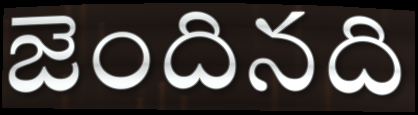
జెందినది